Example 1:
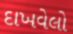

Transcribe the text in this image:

દાખવેલો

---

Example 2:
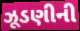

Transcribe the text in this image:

ઝૂડણીની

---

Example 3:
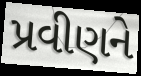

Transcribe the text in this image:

પ્રવીણને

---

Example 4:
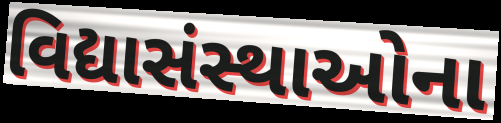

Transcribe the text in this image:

વિદ્યાસંસ્થાઓના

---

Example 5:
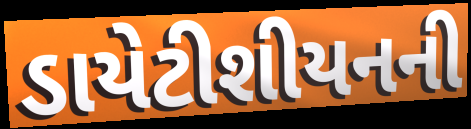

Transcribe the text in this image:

ડાયેટીશીયનની